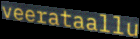
veerataallu